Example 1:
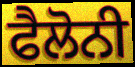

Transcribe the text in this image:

ਫੈਲੋਨੀ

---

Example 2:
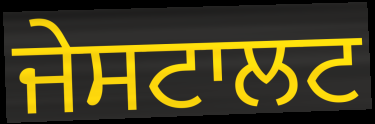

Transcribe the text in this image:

ਜੇਸਟਾਲਟ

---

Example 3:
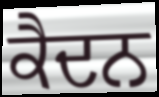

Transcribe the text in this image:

ਕੈਦਨ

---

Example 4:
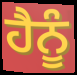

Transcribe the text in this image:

ਹੈਨੂੰ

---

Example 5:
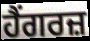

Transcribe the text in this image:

ਹੈਂਗਰਜ਼